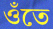
ওঁতে